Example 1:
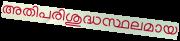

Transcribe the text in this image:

അതിപരിശുദ്ധസ്ഥലമായ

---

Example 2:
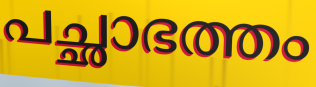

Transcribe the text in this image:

പച്ഛാഭത്തം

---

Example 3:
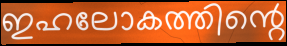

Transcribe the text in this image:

ഇഹലോകത്തിന്റെ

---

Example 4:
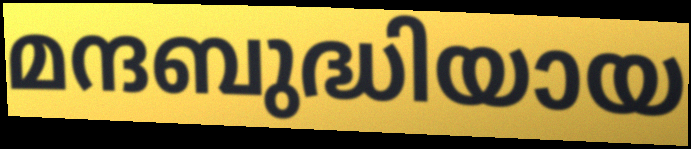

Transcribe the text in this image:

മന്ദബുദ്ധിയായ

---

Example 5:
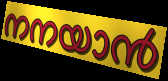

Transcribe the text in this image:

നനയാൻ